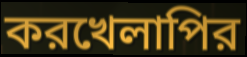
করখেলাপির